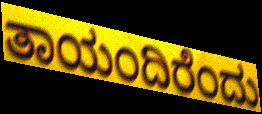
ತಾಯಂದಿರೆಂದು